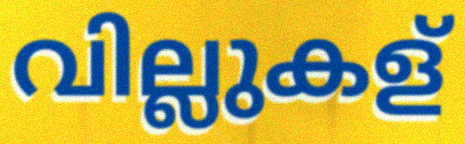
വില്ലുകള്